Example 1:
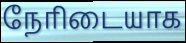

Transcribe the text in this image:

நேரிடையாக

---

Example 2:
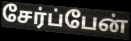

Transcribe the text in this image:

சேர்ப்பேன்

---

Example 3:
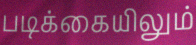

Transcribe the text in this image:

படிக்கையிலும்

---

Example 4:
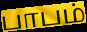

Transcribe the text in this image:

பாபம்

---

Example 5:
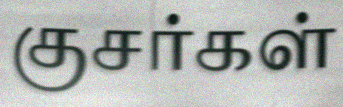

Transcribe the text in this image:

குசர்கள்